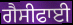
ਗੈਸੀਫਾਈ